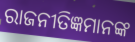
ରାଜନୀତିଜ୍ଞମାନଙ୍କ